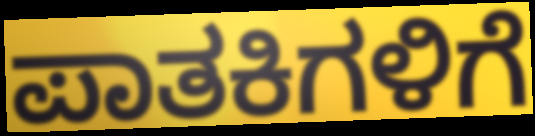
ಪಾತಕಿಗಳಿಗೆ